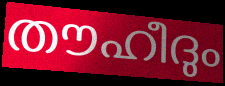
തൗഹീദും